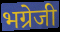
भग्रेजी